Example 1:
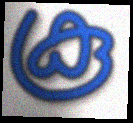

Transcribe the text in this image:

കൂ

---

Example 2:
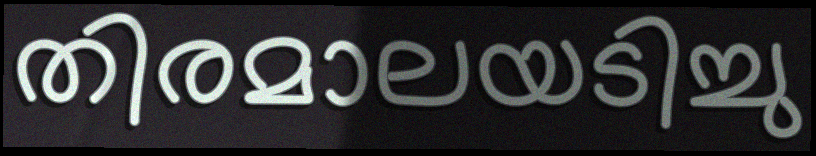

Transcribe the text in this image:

തിരമാലയടിച്ചു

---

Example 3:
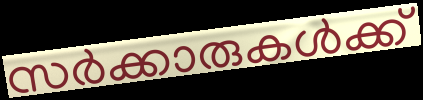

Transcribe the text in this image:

സർക്കാരുകൾക്ക്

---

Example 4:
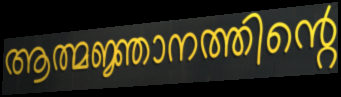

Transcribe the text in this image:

ആത്മജ്ഞാനത്തിന്റെ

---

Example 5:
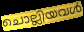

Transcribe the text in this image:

ചൊല്ലിയവൾ